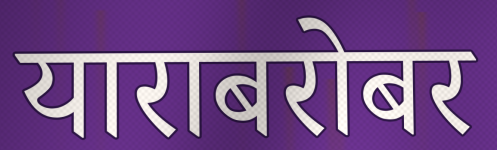
याराबरोबर